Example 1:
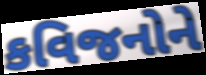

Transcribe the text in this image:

કવિજનોને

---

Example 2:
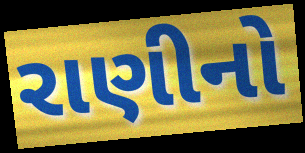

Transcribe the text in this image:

રાણીનો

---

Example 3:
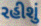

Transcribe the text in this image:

રહીશું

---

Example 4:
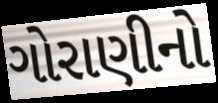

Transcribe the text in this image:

ગોરાણીનો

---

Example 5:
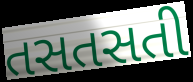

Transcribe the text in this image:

તસતસતી